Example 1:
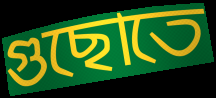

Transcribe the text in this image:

গুছোতে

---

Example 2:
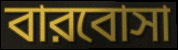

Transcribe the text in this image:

বারবোসা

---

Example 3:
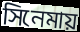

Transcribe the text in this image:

সিনেমায়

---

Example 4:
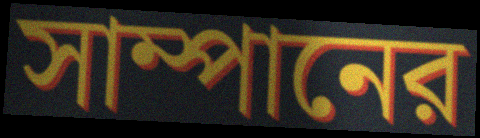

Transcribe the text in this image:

সাম্পানের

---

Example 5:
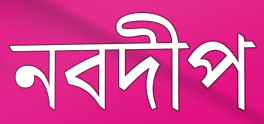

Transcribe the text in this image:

নবদীপ